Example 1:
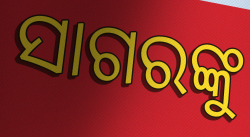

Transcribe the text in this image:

ସାଗରଙ୍କୁ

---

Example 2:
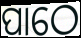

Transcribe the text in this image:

ପାଠେ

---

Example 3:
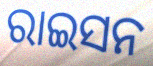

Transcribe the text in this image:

ରାଇସନ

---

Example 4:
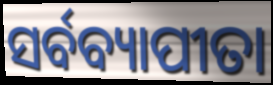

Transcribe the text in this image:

ସର୍ବବ୍ୟାପୀତା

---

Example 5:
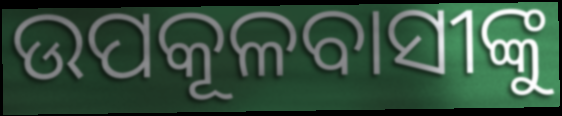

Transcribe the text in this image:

ଉପକୂଳବାସୀଙ୍କୁ